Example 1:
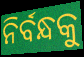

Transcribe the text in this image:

ନିର୍ବନ୍ଧକୁ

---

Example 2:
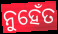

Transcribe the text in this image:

ନୁହେଁତ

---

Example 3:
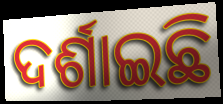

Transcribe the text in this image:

ଦର୍ଶାଇଛି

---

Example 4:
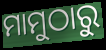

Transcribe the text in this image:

ମାମୁଠାରୁ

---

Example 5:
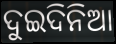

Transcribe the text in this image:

ଦୁଇଦିନିଆ